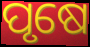
ପୃଷେ